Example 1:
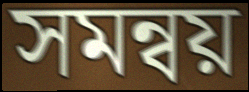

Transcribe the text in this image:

সমন্বয়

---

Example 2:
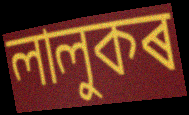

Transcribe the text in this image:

লালুকৰ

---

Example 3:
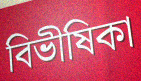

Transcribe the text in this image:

বিভীষিকা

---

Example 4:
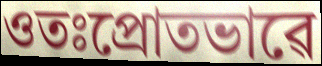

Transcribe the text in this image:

ওতঃপ্ৰোতভাৱে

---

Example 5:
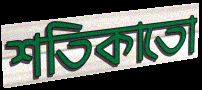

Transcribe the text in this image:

শতিকাতো